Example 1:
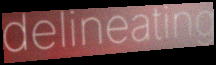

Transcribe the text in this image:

delineating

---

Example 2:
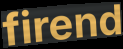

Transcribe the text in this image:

firend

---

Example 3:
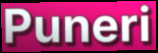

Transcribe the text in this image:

Puneri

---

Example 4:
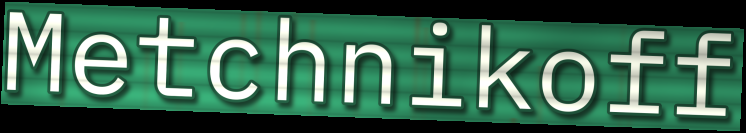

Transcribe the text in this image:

Metchnikoff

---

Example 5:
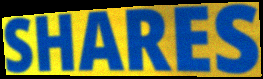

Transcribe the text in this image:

SHARES